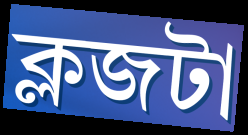
ক্লজটা